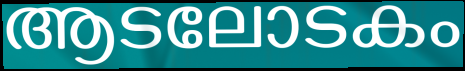
ആടലോടകം